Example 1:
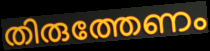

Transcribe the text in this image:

തിരുത്തേണം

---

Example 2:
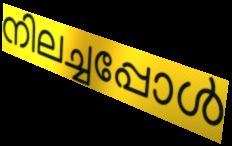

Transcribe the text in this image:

നിലച്ചപ്പോൾ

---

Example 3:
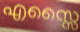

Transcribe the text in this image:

എസ്സൈ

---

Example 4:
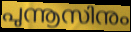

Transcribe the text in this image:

പുന്നൂസിനും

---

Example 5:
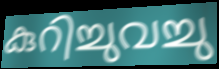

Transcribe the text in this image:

കുറിച്ചുവച്ചു